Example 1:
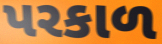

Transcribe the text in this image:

પરકાળ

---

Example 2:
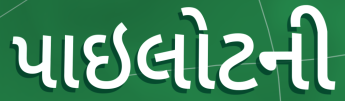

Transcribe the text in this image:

પાઇલોટની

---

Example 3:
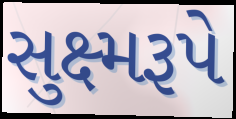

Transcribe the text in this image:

સુક્ષ્મરૂપે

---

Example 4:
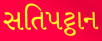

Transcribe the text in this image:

સતિપટ્ઠાન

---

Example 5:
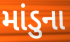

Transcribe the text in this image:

માંડુના